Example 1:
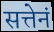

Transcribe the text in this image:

सत्तेनं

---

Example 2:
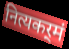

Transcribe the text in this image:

नित्यकर्मं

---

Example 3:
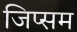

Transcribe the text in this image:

जिप्सम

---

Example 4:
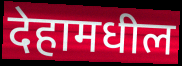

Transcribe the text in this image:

देहामधील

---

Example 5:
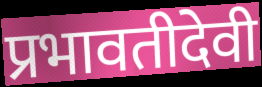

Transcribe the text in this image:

प्रभावतीदेवी